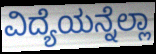
ವಿದ್ಯೆಯನ್ನೆಲ್ಲಾ